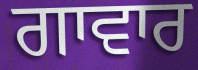
ਗਾਵਾਰ